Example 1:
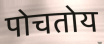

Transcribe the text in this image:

पोचतोय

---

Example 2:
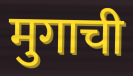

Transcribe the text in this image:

मुगाची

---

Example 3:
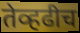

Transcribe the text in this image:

तेव्हढीच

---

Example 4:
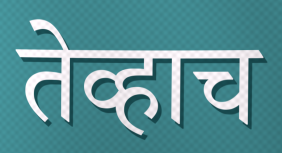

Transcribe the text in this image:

तेव्हाच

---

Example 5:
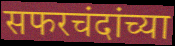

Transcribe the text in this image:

सफरचंदांच्या